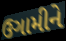
ઉગામીને